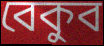
বেকুব